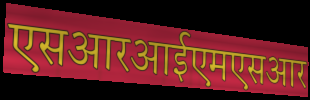
एसआरआईएमएसआर